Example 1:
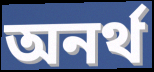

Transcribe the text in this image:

অনর্থ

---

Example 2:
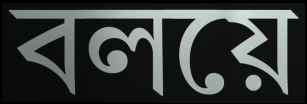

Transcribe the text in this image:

বলয়ে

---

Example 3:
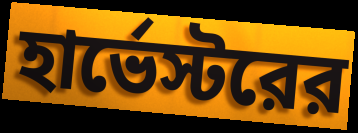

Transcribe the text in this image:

হার্ভেস্টরের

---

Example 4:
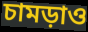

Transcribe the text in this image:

চামড়াও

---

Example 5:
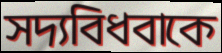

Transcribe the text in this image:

সদ্যবিধবাকে